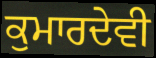
ਕੁਮਾਰਦੇਵੀ